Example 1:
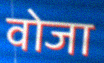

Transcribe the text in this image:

वोजा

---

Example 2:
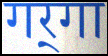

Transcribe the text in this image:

गर्गा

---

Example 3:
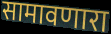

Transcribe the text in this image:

सामावणारा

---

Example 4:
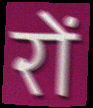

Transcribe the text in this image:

रों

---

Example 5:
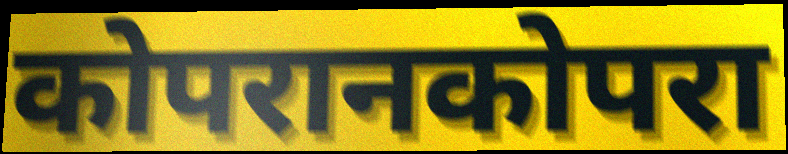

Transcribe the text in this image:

कोपरानकोपरा